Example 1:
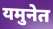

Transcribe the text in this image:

यमुनेत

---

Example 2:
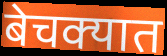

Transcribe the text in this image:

बेचक्यात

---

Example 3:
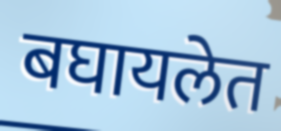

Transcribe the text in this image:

बघायलेत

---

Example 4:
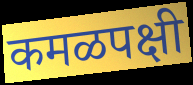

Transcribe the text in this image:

कमळपक्षी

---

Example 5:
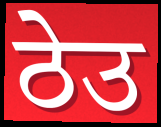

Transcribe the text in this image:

ठेउ